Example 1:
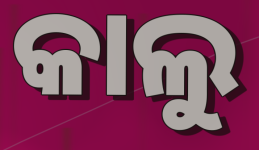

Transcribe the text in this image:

କାଲୁ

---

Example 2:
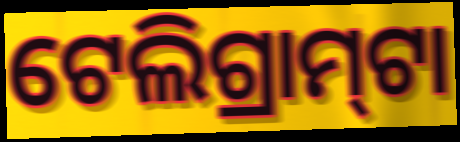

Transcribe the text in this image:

ଟେଲିଗ୍ରାମ୍‍ଟା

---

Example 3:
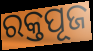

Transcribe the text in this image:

ରକ୍ତପୂଜ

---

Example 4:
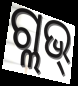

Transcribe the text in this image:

ଗ୍ଲଭ୍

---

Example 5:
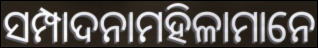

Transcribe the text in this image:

ସମ୍ପାଦନାମହିଳାମାନେ